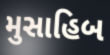
મુસાહિબ